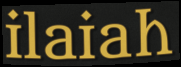
ilaiah